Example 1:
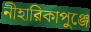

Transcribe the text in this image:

নীহারিকাপুঞ্জে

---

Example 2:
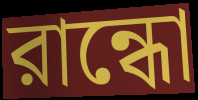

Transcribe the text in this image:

রান্ধো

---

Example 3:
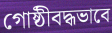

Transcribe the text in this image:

গোষ্ঠীবদ্ধভাবে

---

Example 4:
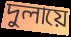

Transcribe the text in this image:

দুলায়ে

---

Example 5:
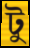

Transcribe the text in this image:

টু